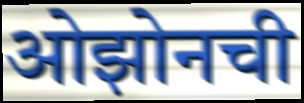
ओझोनची